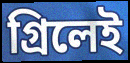
গ্রিলেই